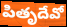
పితృదేవో